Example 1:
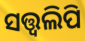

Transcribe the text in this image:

ସତ୍ତ୍ୱଲିପି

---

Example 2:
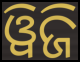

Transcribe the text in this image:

ୱିଜି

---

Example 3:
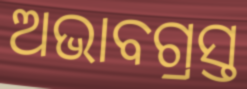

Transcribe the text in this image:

ଅଭାବଗ୍ରସ୍ତ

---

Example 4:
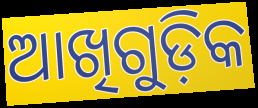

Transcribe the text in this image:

ଆଖିଗୁଡ଼ିକ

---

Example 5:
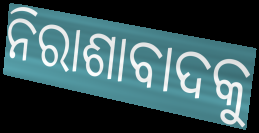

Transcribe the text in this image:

ନିରାଶାବାଦକୁ